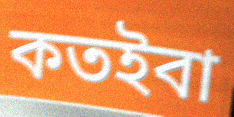
কতইবা